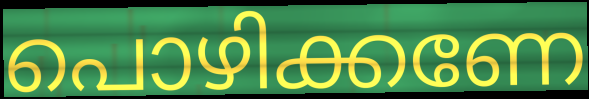
പൊഴിക്കണേ